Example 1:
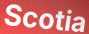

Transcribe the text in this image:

Scotia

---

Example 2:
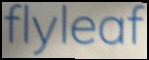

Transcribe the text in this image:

flyleaf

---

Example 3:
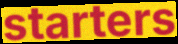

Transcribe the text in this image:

starters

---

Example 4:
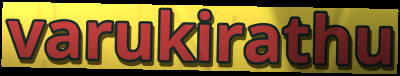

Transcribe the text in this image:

varukirathu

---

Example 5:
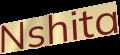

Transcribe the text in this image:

Nshita